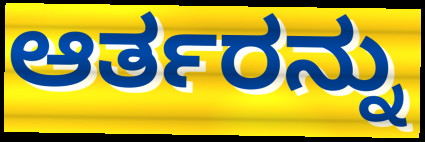
ಆರ್ತರನ್ನು